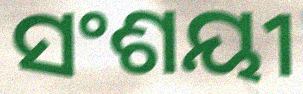
ସଂଶୟୀ